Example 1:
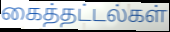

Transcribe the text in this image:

கைத்தட்டல்கள்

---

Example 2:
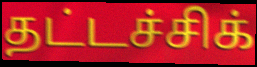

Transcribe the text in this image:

தட்டச்சிக்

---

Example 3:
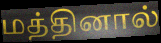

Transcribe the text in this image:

மத்தினால்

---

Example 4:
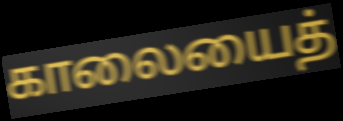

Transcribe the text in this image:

காலையைத்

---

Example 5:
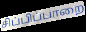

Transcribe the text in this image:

சிப்பிப்பாறை